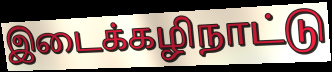
இடைக்கழிநாட்டு